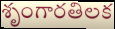
శృంగారతిలక